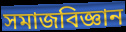
সমাজবিজ্ঞান